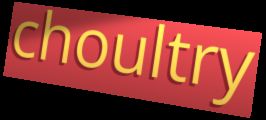
choultry